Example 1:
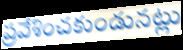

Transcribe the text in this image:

ప్రవేశించకుండునట్లు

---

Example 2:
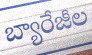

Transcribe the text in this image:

బ్యారేజీల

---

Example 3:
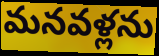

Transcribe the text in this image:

మనవళ్లను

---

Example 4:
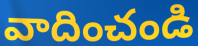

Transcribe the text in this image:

వాదించండి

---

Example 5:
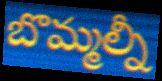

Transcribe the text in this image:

బొమ్మల్నీ